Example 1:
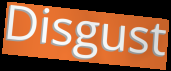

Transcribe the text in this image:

Disgust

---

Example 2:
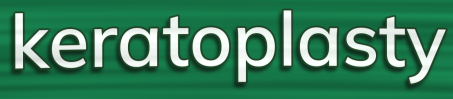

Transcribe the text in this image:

keratoplasty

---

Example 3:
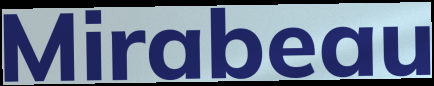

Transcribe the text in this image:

Mirabeau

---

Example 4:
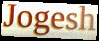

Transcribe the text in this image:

Jogesh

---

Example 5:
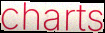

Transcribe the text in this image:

charts